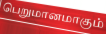
பெறுமானமாகும்